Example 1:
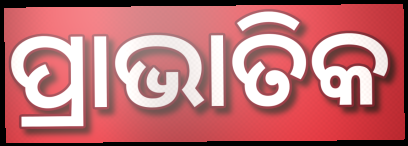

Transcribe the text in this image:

ପ୍ରାଭାତିକ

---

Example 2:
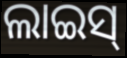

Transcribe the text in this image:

ଲାଇସ୍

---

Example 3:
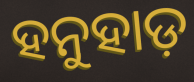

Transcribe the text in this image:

ହନୁହାଡ଼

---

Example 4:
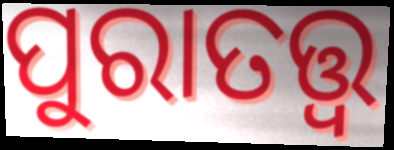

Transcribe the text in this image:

ପୁରାତତ୍ତ୍ୱ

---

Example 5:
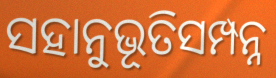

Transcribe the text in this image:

ସହାନୁଭୂତିସମ୍ପନ୍ନ